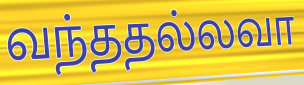
வந்ததல்லவா